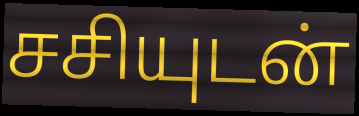
சசியுடன்